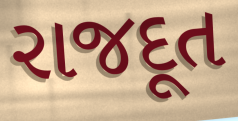
રાજદૂત